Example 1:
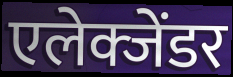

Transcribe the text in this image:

एलेक्‍जेंडर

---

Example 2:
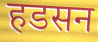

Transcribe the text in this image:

हडसन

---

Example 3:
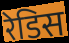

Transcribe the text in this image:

रेडिस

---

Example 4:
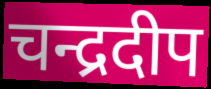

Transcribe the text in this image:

चन्द्रदीप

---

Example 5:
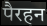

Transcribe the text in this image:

पैरहन